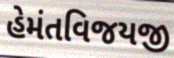
હેમંતવિજયજી